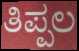
ತಿಪ್ಪಲ